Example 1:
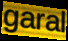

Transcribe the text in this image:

garal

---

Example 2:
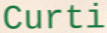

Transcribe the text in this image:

Curti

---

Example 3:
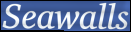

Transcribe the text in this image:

Seawalls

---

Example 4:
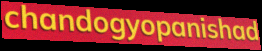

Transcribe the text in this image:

chandogyopanishad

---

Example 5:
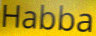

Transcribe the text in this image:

Habba